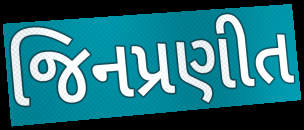
જિનપ્રણીત